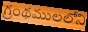
గ్రంథములలోని